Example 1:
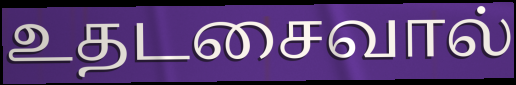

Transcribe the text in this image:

உதடசைவால்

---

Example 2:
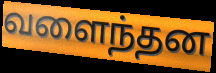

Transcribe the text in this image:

வளைந்தன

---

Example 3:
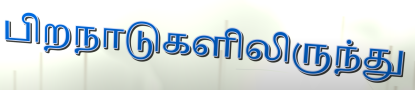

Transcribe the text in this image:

பிறநாடுகளிலிருந்து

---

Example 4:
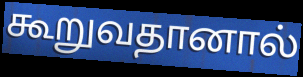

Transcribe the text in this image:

கூறுவதானால்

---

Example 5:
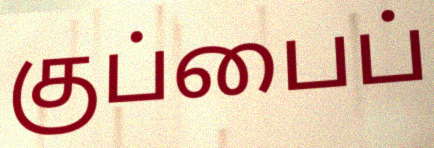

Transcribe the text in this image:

குப்பைப்